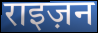
राइज़न